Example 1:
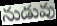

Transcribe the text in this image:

నుడువు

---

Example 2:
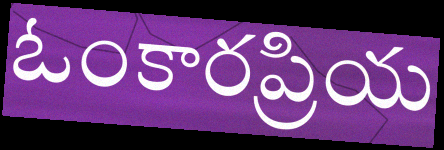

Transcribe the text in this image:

ఓంకారప్రియ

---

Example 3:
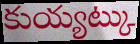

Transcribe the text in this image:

కుయ్యట్కు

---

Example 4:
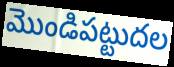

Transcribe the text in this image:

మొండిపట్టుదల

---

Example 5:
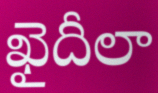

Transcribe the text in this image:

ఖైదీలా